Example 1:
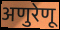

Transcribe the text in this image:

अणुरेणू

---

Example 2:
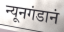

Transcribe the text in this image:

न्यूनगंडानं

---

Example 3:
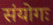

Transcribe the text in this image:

संयोगः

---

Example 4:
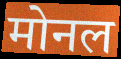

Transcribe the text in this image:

मोनल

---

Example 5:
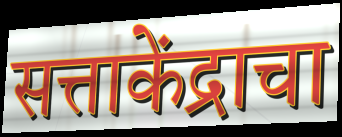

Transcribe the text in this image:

सत्ताकेंद्राचा